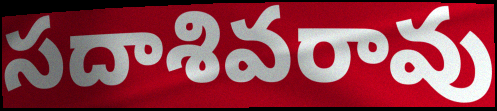
సదాశివరావు